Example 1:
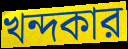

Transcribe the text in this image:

খন্দকার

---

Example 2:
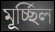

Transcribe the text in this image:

মূর্চ্ছিল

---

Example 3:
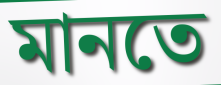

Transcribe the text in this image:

মানতে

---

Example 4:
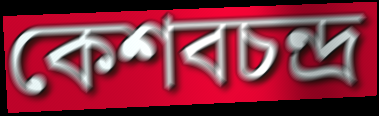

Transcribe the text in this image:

কেশবচন্দ্র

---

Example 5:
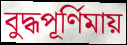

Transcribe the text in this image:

বুদ্ধপূর্ণিমায়